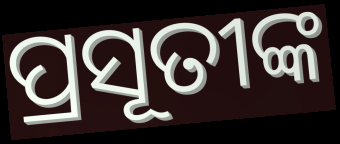
ପ୍ରସୂତୀଙ୍କ